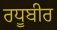
ਰਧੂਬੀਰ